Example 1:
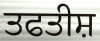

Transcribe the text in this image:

ਤਫਤੀਸ਼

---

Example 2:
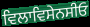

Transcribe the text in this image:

ਵਿਲਾਵਿਸੇਨਸੀਓ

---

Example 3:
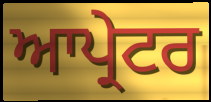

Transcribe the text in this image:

ਆਪ੍ਰੇਟਰ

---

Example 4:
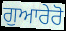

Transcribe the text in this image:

ਗੁਆਰੇਰੋ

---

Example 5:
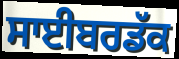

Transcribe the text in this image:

ਸਾਈਬਰਡੱਕ